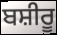
ਬਸ਼ੀਰੂ